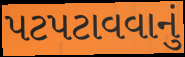
પટપટાવવાનું